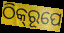
ଠିକ୍‍ରୂପେ